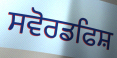
ਸਵੋਰਡਫਿਸ਼